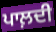
ਪਾਲ਼ਦੀ